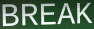
BREAK